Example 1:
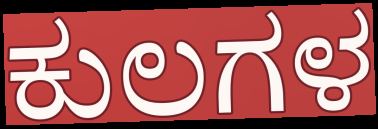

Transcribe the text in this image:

ಕುಲಗಳ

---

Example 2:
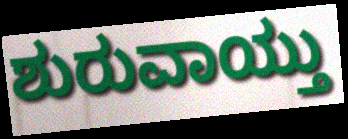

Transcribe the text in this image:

ಶುರುವಾಯ್ತು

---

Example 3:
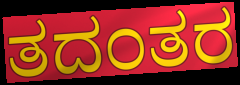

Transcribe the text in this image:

ತದಂತರ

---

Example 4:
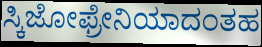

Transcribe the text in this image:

ಸ್ಕಿಜೋಫ್ರೇನಿಯಾದಂತಹ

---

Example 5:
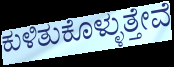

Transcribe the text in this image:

ಕುಳಿತುಕೊಳ್ಳುತ್ತೇವೆ